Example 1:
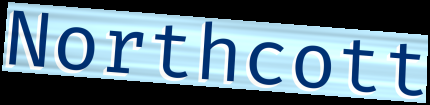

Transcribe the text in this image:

Northcott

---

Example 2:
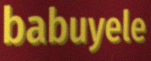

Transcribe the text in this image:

babuyele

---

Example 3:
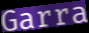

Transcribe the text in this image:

Garra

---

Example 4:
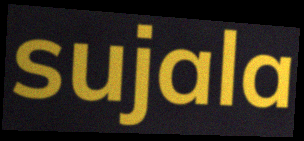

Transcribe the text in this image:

sujala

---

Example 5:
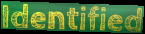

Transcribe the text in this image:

Identified